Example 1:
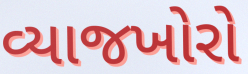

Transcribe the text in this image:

વ્યાજખોરો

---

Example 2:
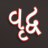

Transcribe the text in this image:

વૃદ્વ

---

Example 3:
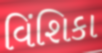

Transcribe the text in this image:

વિંશિકા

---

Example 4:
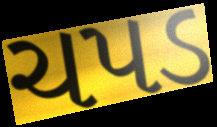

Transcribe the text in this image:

ચપડ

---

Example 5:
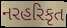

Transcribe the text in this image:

નરહરિકૃત